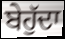
ਬੇਹੁੱਦਾ